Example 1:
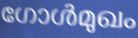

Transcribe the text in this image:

ഗോൾമുഖം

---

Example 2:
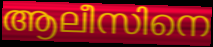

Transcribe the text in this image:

ആലീസിനെ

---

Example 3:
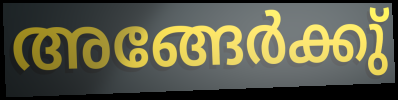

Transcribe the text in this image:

അങ്ങേർക്കു്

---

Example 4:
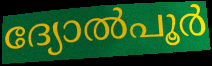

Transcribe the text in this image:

ദ്യോൽപൂർ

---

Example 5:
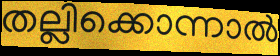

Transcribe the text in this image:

തല്ലിക്കൊന്നാൽ